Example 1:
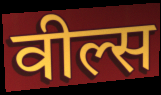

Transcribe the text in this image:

वील्स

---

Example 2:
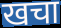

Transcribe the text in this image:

खचा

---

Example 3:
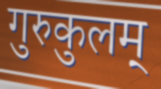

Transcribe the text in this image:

गुरुकुलम्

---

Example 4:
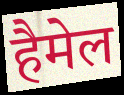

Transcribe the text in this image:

हैमेल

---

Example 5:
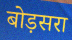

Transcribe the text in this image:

बोड़सरा